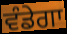
ਵੰਡੇਗਾ